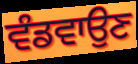
ਵੰਡਵਾਉਣ